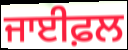
ਜਾਈਫ਼ਲ